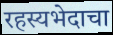
रहस्यभेदाचा